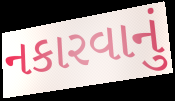
નકારવાનું